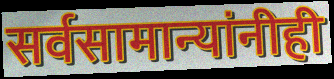
सर्वसामान्यांनीही